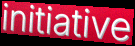
initiative